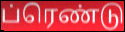
ப்ரெண்டு